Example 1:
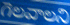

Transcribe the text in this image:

గెలవాలని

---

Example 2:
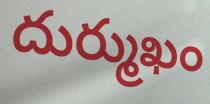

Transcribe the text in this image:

దుర్ముఖం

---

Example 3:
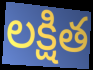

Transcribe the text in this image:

లక్షిత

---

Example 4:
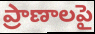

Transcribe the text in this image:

ప్రాణాలపై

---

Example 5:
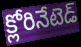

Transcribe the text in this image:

క్లోరినేటెడ్